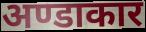
अण्डाकार